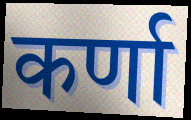
कर्णा